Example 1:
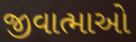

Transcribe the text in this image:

જીવાત્માઓ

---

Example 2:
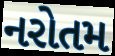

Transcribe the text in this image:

નરોતમ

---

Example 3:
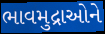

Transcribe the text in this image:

ભાવમુદ્રાઓને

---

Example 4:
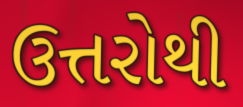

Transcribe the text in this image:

ઉત્તરોથી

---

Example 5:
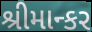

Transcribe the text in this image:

શ્રીમાન્કર